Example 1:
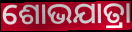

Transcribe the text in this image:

ଶୋଭଯାତ୍ରା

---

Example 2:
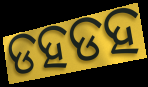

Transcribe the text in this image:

ଡହଡହ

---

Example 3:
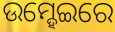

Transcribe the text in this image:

ଉମ୍ହେଇରେ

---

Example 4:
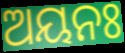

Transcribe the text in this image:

ଅୟନଃ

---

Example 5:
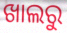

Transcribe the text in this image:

ଖାଲରୁ